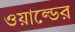
ওয়াল্ডের